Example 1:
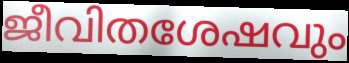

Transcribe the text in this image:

ജീവിതശേഷവും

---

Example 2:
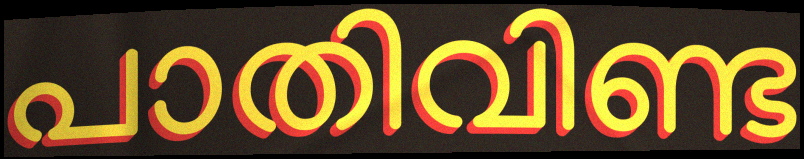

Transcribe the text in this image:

പാതിവിണ്ട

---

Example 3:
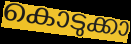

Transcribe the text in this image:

കൊടുക്കാ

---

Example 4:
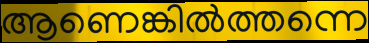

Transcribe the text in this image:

ആണെങ്കിൽത്തന്നെ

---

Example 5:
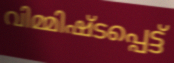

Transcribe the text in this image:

വിമ്മിഷ്ടപ്പെട്ട്